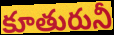
కూతురునీ